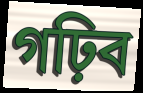
গঢ়িব